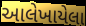
આલેખાયેલા